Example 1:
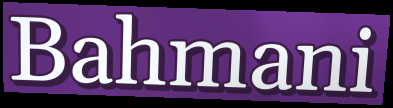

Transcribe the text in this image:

Bahmani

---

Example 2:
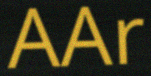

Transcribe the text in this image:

AAr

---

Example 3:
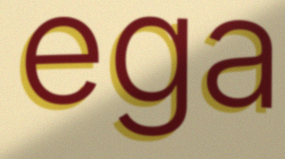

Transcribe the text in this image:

ega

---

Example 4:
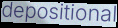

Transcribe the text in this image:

depositional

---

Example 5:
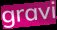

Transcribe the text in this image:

gravi